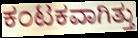
ಕಂಟಕವಾಗಿತ್ತು